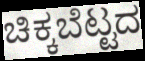
ಚಿಕ್ಕಬೆಟ್ಟದ